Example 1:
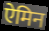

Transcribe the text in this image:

ऐमिन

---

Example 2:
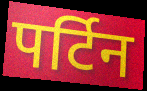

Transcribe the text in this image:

पर्टिन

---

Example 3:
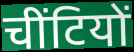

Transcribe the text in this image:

चींटियों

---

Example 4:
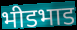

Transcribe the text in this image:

भीडभाड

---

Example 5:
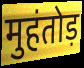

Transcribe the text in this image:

मुहंतोड़